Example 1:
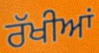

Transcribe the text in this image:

ਰੱਖੀਆਂ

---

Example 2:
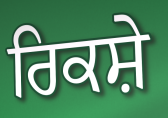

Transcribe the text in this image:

ਰਿਕਸ਼ੇ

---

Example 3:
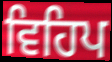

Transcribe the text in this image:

ਵਿਹਿਪ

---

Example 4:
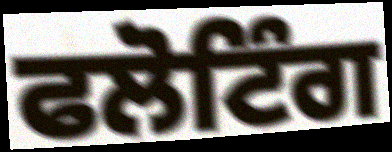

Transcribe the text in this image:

ਫਲੋਟਿੰਗ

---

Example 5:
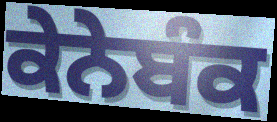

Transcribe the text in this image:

ਕੇਨੇਬੰਕ